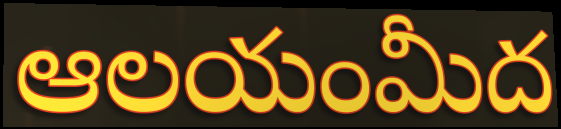
ఆలయంమీద